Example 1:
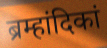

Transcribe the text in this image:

ब्रम्हांदिकां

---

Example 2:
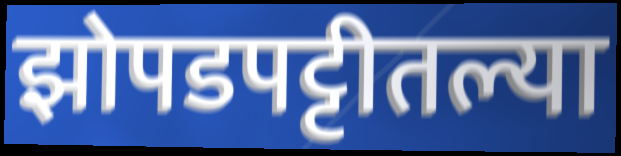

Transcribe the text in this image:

झोपडपट्टीतल्या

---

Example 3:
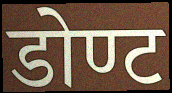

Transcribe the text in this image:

डोण्ट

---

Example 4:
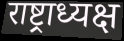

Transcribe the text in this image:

राष्ट्राध्यक्ष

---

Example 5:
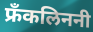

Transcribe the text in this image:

फ्रँकलिननी